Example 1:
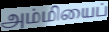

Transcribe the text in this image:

அம்மியைப்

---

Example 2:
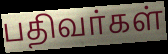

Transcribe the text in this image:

பதிவர்கள்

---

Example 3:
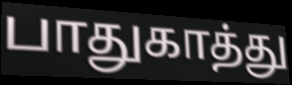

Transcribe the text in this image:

பாதுகாத்து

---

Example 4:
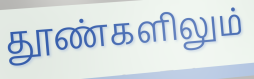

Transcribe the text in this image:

தூண்களிலும்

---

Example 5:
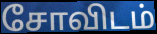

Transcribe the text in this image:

சோவிடம்